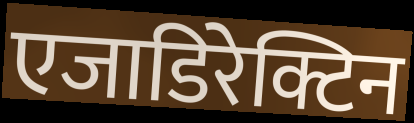
एजाडिरेक्टिन